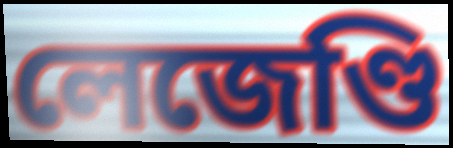
লেজেণ্ডি